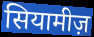
सियामीज़